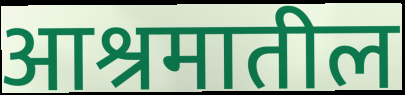
आश्रमातील